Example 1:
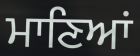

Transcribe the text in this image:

ਮਾਣਿਆਂ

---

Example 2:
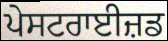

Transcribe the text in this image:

ਪੇਸਟਰਾਈਜ਼ਡ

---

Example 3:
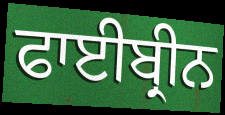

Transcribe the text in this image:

ਫਾਈਬ੍ਰੀਨ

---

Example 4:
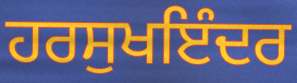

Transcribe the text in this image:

ਹਰਸੁਖਇੰਦਰ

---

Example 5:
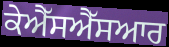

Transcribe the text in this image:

ਕੇਐੱਸਐੱਸਆਰ